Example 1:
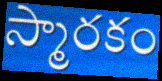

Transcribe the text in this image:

స్మారకం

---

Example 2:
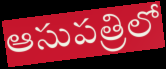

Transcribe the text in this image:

ఆసుపత్రిలో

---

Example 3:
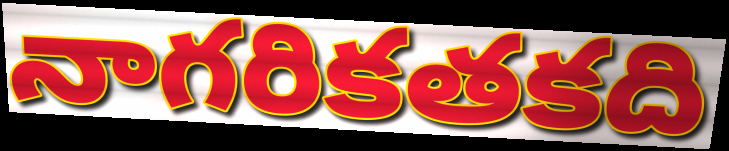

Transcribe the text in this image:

నాగరికతకది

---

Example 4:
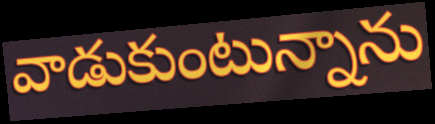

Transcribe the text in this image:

వాడుకుంటున్నాను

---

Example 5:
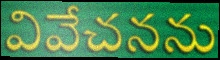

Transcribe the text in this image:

వివేచనను